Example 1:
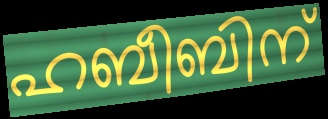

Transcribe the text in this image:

ഹബീബിന്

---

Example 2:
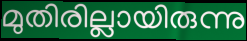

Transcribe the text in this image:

മുതിരില്ലായിരുന്നു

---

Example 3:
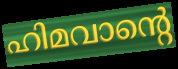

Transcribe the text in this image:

ഹിമവാന്റെ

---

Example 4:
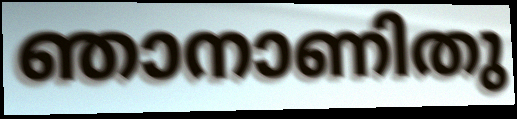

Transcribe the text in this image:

ഞാനാണിതു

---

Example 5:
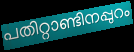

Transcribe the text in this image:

പതിറ്റാണ്ടിനപ്പുറം